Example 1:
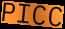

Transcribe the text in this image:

PICC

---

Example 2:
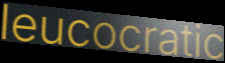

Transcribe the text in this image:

leucocratic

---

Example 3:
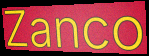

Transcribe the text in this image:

Zanco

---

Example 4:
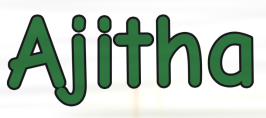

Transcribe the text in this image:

Ajitha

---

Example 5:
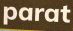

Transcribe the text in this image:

parat